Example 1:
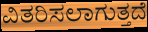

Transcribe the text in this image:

ವಿತರಿಸಲಾಗುತ್ತದೆ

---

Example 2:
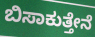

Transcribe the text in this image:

ಬಿಸಾಕುತ್ತೇನೆ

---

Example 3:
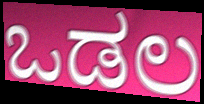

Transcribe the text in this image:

ಒಡಲ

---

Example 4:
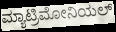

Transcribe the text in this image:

ಮ್ಯಾಟ್ರಿಮೋನಿಯಲ್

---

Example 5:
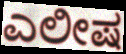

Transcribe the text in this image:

ಎಲೀಷ